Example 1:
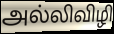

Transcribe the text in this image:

அல்லிவிழி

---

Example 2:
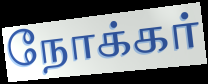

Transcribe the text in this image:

நோக்கர்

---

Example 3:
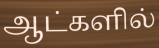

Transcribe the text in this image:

ஆட்களில்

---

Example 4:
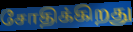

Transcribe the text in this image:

சோதிக்கிறது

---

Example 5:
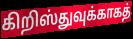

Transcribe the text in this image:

கிறிஸ்துவுக்காகத்